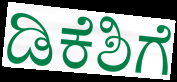
ಡಿಕೆಶಿಗೆ